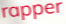
rapper